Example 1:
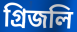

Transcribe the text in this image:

গ্রিজলি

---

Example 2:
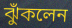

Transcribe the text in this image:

ঝুঁকলেন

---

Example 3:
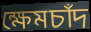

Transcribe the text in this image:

ক্ষেমচাঁদ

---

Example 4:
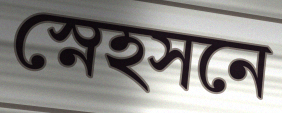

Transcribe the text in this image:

স্নেহসনে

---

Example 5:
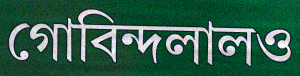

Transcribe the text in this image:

গোবিন্দলালও